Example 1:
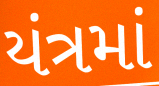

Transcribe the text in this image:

યંત્રમાં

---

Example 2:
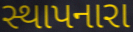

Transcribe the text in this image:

સ્થાપનારા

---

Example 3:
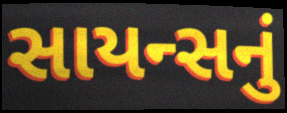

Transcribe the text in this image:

સાયન્સનું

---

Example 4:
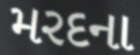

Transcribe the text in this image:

મરદના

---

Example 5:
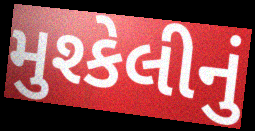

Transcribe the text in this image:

મુશ્કેલીનું